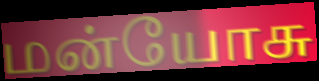
மன்யோசு